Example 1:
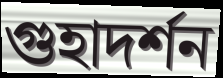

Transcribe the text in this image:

গুহাদর্শন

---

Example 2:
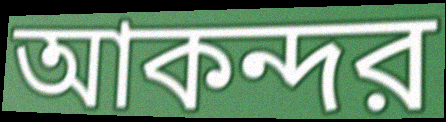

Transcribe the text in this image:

আকন্দর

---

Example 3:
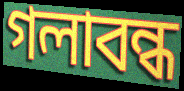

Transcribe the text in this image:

গলাবন্ধ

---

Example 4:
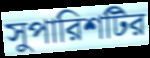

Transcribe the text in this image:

সুপারিশটির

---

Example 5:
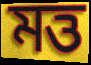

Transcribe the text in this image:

মত্ত